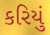
કરિયું